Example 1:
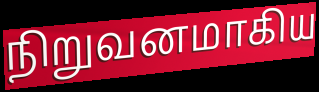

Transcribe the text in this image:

நிறுவனமாகிய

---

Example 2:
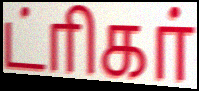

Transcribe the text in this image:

ட்ரிகர்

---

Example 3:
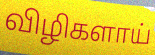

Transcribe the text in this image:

விழிகளாய்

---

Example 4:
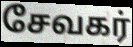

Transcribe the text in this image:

சேவகர்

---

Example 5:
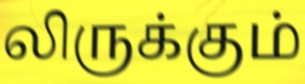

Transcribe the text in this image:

லிருக்கும்